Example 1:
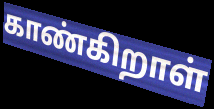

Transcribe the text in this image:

காண்கிறாள்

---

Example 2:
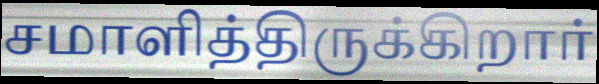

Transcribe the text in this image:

சமாளித்திருக்கிறார்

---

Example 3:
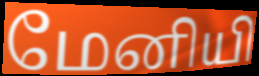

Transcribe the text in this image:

மேனியி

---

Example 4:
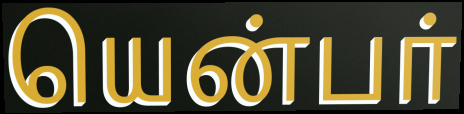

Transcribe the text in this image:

யென்பர்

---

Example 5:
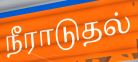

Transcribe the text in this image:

நீராடுதல்